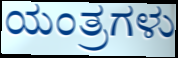
ಯಂತ್ರಗಳು